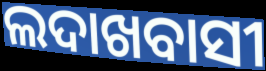
ଲଦାଖବାସୀ